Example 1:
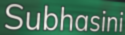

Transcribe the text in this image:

Subhasini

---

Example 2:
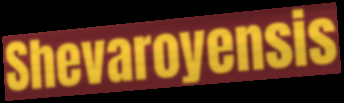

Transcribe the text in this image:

Shevaroyensis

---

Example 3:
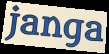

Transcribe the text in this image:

janga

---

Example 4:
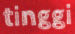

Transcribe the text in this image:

tinggi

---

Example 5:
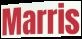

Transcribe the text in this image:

Marris